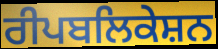
ਰੀਪਬਲਿਕੇਸ਼ਨ